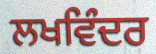
ਲਖਵਿੰਦਰ